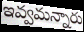
ఇవ్వమన్నారు